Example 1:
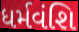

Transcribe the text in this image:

ધર્મવંશિ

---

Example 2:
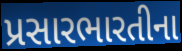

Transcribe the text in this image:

પ્રસારભારતીના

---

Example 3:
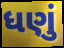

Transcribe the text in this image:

ધણું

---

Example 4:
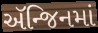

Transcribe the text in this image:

ઍન્જિનમાં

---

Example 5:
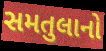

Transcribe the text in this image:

સમતુલાનો